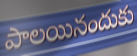
పాలయినందుకు